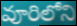
వూరిలోని